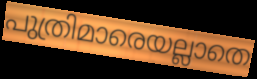
പുത്രിമാരെയല്ലാതെ